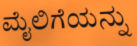
ಮೈಲಿಗೆಯನ್ನು